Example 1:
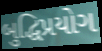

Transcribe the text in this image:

બુદ્ધિપ્રયોગ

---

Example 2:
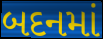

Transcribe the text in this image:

બદનમાં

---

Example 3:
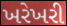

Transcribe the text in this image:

ખરેખરી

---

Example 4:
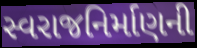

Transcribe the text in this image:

સ્વરાજનિર્માણની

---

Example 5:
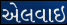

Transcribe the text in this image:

એલવાઇ